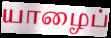
யாழைப்